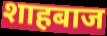
शाहबाज